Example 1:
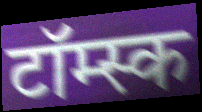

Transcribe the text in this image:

टॉम्स्क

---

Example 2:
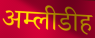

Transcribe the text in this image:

अम्लीडीह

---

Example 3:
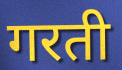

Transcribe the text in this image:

गरती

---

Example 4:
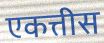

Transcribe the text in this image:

एकत्तीस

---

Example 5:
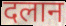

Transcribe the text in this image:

दलान